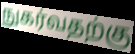
நுகர்வதற்கு